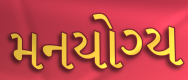
મનયોગ્ય